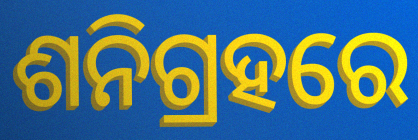
ଶନିଗ୍ରହରେ